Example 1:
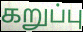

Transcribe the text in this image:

கறுப்பு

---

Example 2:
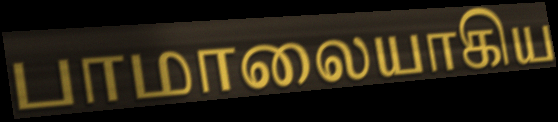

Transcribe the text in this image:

பாமாலையாகிய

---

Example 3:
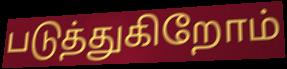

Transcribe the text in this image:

படுத்துகிறோம்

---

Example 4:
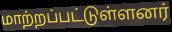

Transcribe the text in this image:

மாற்றப்பட்டுள்ளனர்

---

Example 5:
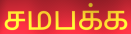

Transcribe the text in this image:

சமபக்க